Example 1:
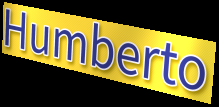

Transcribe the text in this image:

Humberto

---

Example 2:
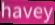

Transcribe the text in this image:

havey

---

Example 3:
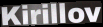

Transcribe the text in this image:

Kirillov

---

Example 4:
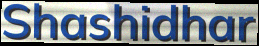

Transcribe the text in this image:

Shashidhar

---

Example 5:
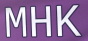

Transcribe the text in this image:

MHK